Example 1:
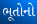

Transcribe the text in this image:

ભૂતોનો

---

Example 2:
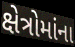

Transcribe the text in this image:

ક્ષેત્રોમાંના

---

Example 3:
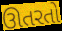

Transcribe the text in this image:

ઊતરતો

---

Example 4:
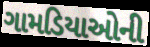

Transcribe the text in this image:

ગામડિયાઓની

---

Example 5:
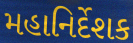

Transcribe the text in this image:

મહાનિર્દેશક